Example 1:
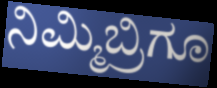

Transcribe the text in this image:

ನಿಮ್ಮಿಬ್ರಿಗೂ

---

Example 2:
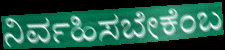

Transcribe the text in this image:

ನಿರ್ವಹಿಸಬೇಕೆಂಬ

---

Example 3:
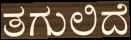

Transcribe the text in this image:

ತಗುಲಿದೆ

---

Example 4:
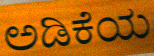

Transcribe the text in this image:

ಅಡಿಕೆಯ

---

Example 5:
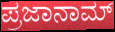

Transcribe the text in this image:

ಪ್ರಜಾನಾಮ್